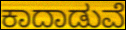
ಕಾದಾಡುವೆ